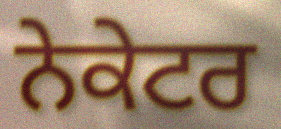
ਨੇਕੇਟਰ